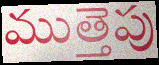
ముత్తెపు